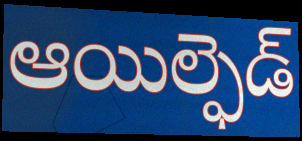
ఆయిల్ఫెడ్